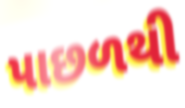
પાછળથી